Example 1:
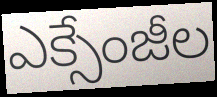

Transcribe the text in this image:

ఎక్సేంజీల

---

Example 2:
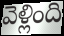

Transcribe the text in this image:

వెళ్లింది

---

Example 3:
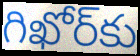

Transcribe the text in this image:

గిఖోర్‌కు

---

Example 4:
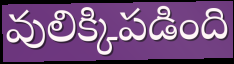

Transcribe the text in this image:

వులిక్కిపడింది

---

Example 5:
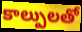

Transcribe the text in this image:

కాల్పులతో